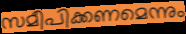
സമീപിക്കണമെന്നും